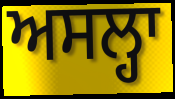
ਅਸਲ੍ਹਾ